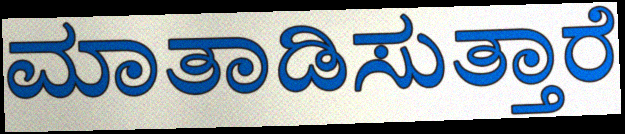
ಮಾತಾಡಿಸುತ್ತಾರೆ